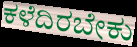
ಕಳೆದಿರಬೇಕು